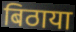
बिठाया